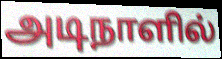
அடிநாளில்